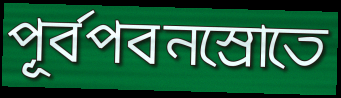
পূর্বপবনস্রোতে